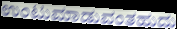
ಉಂಟುಮಾಡುವಂತಹುದು